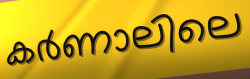
കർണാലിലെ